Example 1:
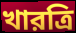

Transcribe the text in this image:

খারত্রি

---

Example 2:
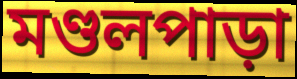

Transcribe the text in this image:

মণ্ডলপাড়া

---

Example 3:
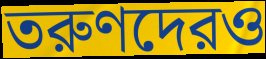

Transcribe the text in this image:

তরুণদেরও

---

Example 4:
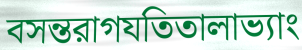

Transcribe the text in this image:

বসন্তরাগযতিতালাভ্যাং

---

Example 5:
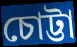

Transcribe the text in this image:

চোট্টা